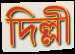
দিল্লী